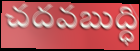
చదవబుద్ధి